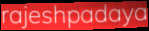
rajeshpadaya